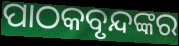
ପାଠକବୃନ୍ଦଙ୍କର